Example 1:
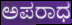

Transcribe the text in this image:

ಅಪರಾಧ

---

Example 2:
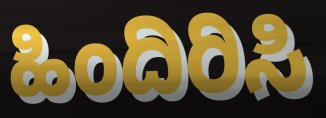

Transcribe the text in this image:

ಹಿಂದಿರಿಸಿ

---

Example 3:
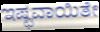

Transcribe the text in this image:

ಇಷ್ಟವಾಯಿತೇ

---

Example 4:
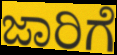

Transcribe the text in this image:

ಜಾರಿಗೆ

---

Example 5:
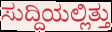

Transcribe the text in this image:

ಸುದ್ದಿಯಲ್ಲಿತ್ತು